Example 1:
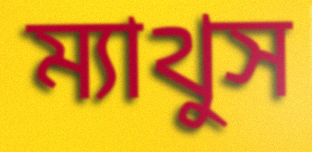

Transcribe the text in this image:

ম্যাথুস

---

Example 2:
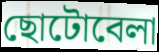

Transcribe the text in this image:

ছোটোবেলা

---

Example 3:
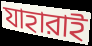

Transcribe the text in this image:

যাহারাই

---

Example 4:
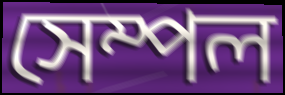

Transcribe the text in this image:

সেম্পল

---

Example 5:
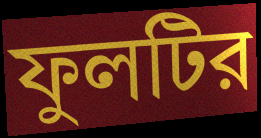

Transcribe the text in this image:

ফুলটির